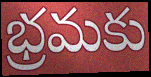
భ్రమకు